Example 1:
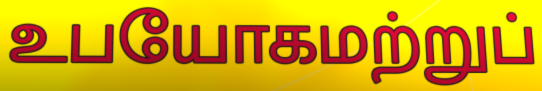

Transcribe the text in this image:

உபயோகமற்றுப்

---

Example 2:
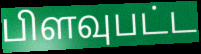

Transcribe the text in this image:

பிளவுபட்ட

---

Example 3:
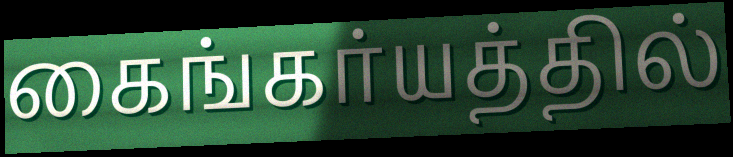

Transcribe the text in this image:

கைங்கர்யத்தில்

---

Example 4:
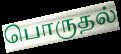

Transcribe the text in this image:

பொருதல்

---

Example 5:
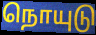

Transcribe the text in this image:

நொயுடு